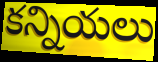
కన్నియలు